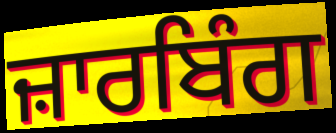
ਜ਼ਾਰਬਿੰਗ